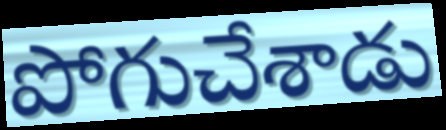
పోగుచేశాడు